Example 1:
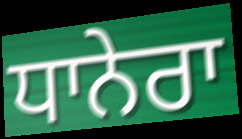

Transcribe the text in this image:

ਧਾਨੇਰਾ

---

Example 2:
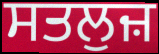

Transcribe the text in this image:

ਸਤਲੁਜ਼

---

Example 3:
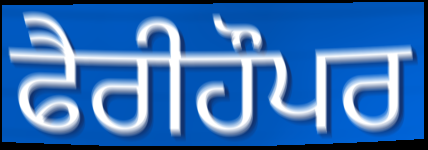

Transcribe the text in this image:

ਫੈਰੀਹੌਪਰ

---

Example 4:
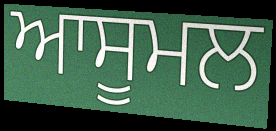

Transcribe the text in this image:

ਆਸੂਮਲ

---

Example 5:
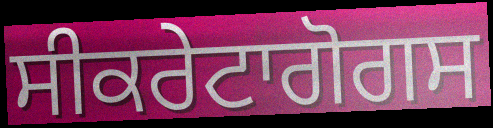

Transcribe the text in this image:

ਸੀਕਰੇਟਾਗੋਗਸ